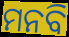
ମନବି